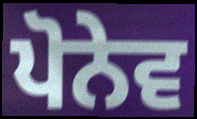
ਪੋਨੇਵ